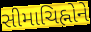
સીમાચિહ્નોને